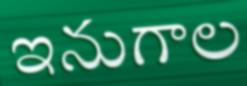
ఇనుగాల